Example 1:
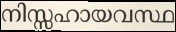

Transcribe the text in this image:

നിസ്സഹായവസ്ഥ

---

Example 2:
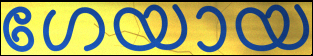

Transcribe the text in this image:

ഗേയായ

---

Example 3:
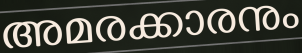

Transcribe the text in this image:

അമരക്കാരനും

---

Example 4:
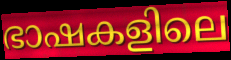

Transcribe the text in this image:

ഭാഷകളിലെ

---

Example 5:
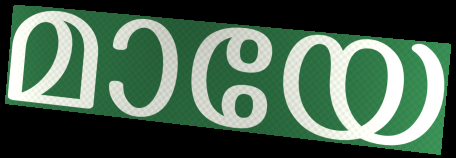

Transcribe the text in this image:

മായേ